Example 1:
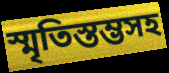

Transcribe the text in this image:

স্মৃতিস্তম্ভসহ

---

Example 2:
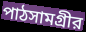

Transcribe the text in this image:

পাঠসামগ্রীর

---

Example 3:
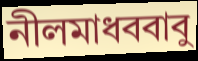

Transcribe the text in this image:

নীলমাধববাবু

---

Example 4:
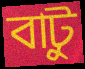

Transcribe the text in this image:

বাটু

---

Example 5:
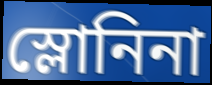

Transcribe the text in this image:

স্লোনিনা